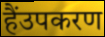
हैंउपकरण